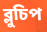
ব্লুচিপ